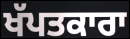
ਖੱਪਤਕਾਰਾ